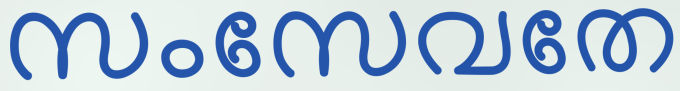
സംസേവതേ